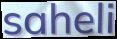
saheli